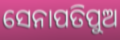
ସେନାପତିପୁଅ